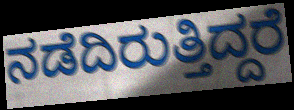
ನಡೆದಿರುತ್ತಿದ್ದರೆ